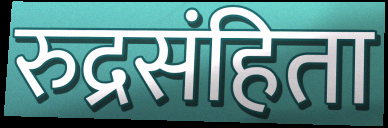
रुद्रसंहिता